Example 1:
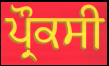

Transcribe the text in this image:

ਪ੍ਰੌਕਸੀ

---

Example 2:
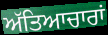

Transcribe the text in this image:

ਅੱਤਿਆਚਾਰਾਂ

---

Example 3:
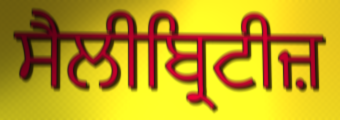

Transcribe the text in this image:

ਸੈਲੀਬ੍ਰਿਟੀਜ਼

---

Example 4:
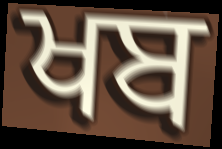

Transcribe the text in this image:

ਖਬ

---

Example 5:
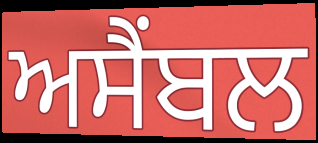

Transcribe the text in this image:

ਅਸੈਂਬਲ